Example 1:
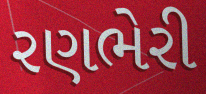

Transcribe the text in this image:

રણભેરી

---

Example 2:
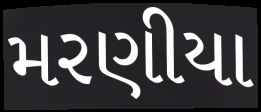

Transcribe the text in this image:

મરણીયા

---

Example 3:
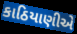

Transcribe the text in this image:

કાઠિયાણીએ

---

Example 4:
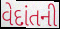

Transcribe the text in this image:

વેદાંતની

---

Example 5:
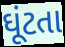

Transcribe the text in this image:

ઘૂંટતા